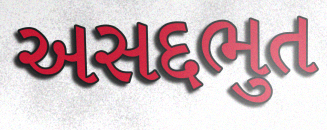
અસદ્દભુત